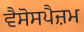
ਵੈਸੋਸਪੈਜ਼ਮ